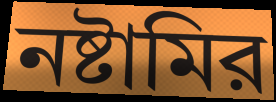
নষ্টামির